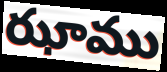
ఝాము